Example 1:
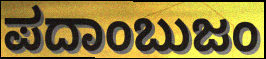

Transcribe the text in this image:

ಪದಾಂಬುಜಂ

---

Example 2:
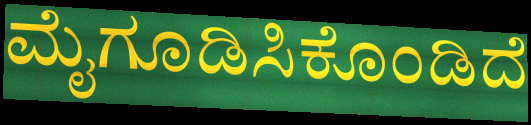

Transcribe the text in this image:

ಮೈಗೂಡಿಸಿಕೊಂಡಿದೆ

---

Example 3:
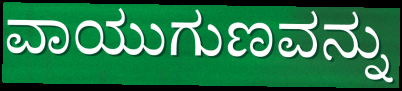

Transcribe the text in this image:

ವಾಯುಗುಣವನ್ನು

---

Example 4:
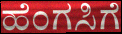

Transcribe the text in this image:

ಹೆಂಗಸಿಗೆ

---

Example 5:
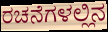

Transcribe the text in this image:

ರಚನೆಗಳಲ್ಲಿನ